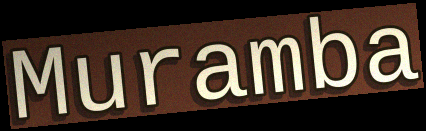
Muramba